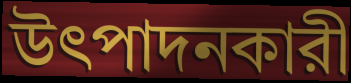
উৎপাদনকারী